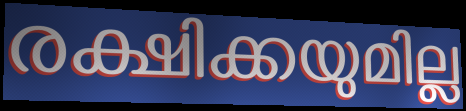
രക്ഷിക്കയുമില്ല